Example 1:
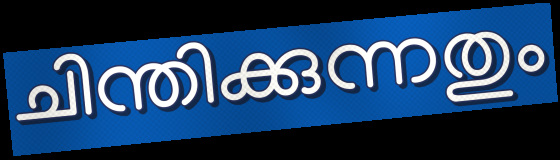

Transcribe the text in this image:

ചിന്തിക്കുന്നതും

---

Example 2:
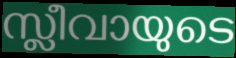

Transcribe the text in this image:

സ്ലീവായുടെ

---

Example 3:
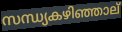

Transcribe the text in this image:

സന്ധ്യകഴിഞ്ഞാല്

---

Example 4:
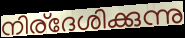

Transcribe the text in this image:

നിര്ദേശിക്കുന്നു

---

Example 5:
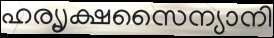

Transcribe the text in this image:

ഹര്യൃക്ഷസൈന്യാനി